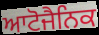
ਆਟੋਜੈਨਿਕ